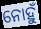
ନୋହୁଁ